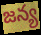
జన్య